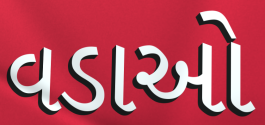
વડાઓ